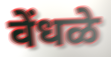
वेंधळे